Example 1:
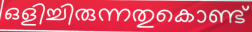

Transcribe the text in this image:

ഒളിച്ചിരുന്നതുകൊണ്ട്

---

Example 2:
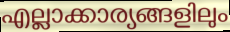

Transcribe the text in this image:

എല്ലാക്കാര്യങ്ങളിലും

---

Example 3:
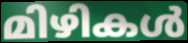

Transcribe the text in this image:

മിഴികൾ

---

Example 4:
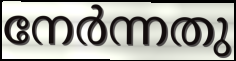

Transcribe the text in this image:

നേർന്നതു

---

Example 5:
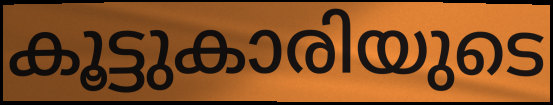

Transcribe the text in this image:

കൂട്ടുകാരിയുടെ